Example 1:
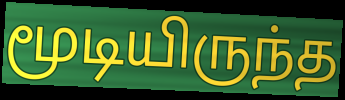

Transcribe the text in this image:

மூடியிருந்த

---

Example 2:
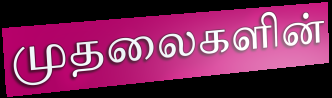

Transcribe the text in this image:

முதலைகளின்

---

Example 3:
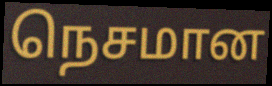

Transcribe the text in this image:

நெசமான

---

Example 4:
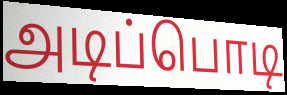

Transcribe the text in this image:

அடிப்பொடி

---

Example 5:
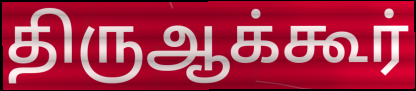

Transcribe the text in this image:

திருஆக்கூர்